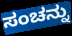
ಸಂಚನ್ನು